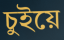
চুইয়ে